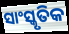
ସାଂସ୍କୃତିକ